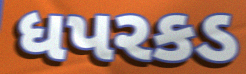
ધપરકડ